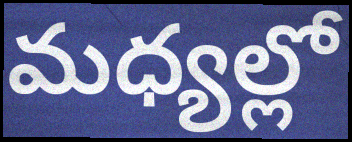
మధ్యల్లో